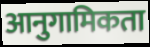
आनुगामिकता